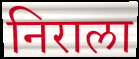
निराला